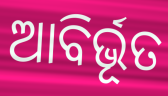
ଆବିର୍ଭୂତ